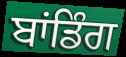
ਬਾਂਡਿੰਗ